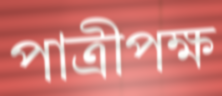
পাত্রীপক্ষ